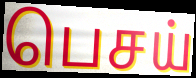
பெசய்